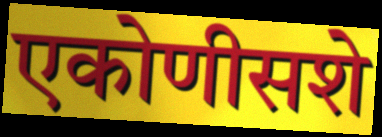
एकोणीसशे